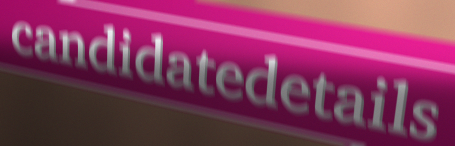
candidatedetails